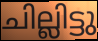
ചില്ലിട്ടു